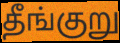
தீங்குறு